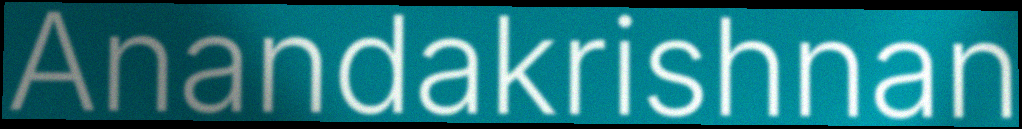
Anandakrishnan